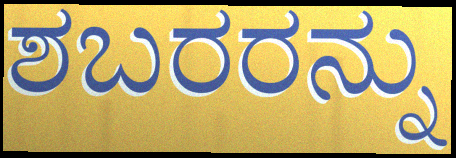
ಶಬರರನ್ನು